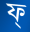
ফ্